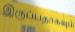
இருப்பதாகவும்